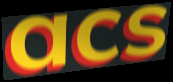
acs